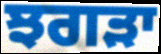
ਝਗੜਾ